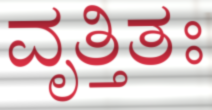
ವೃತ್ತಿತಃ